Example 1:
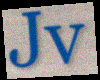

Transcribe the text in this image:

Jv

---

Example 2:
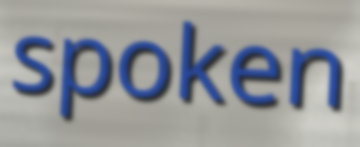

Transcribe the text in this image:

spoken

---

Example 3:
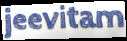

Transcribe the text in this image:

jeevitam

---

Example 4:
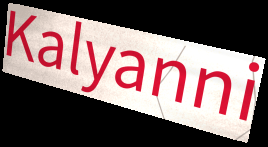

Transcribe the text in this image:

Kalyanni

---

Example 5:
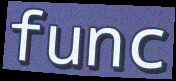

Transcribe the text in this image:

func